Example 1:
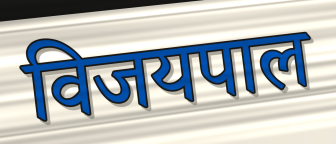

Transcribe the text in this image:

विजयपाल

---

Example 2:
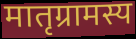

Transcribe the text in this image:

मातृग्रामस्य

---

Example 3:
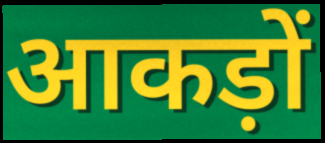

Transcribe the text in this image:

आकड़ों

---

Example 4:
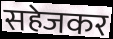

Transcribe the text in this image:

सहेजकर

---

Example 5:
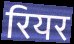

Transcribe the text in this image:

रियर